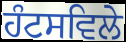
ਹੰਟਸਵਿਲੇ